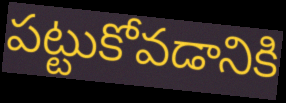
పట్టుకోవడానికి